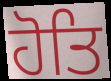
ਹੋਤਿ